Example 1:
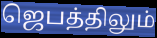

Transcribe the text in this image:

ஜெபத்திலும்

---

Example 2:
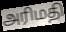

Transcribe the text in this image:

அரிமதி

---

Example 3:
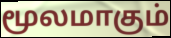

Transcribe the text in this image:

மூலமாகும்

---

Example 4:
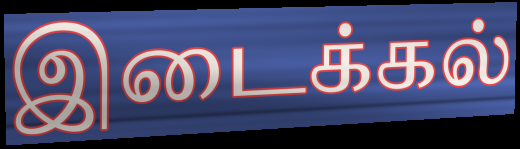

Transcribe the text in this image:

இடைக்கல்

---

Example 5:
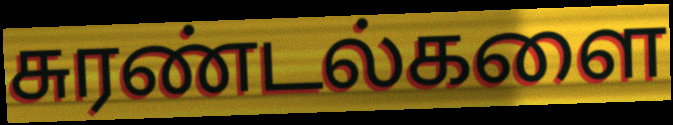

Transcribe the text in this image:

சுரண்டல்களை